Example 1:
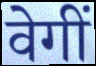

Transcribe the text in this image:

वेगीं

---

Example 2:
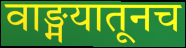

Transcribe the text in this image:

वाङ्मयातूनच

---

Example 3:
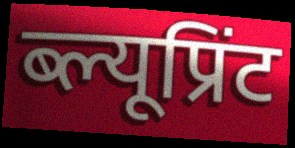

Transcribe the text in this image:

ब्ल्यूप्रिंट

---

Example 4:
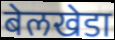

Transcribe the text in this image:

बेलखेडा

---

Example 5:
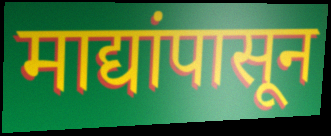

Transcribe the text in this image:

माद्यांपासून